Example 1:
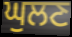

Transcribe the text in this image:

ਘੁਲਣ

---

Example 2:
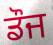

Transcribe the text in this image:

ਡੌਜ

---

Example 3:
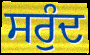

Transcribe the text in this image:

ਸਰੁੰਦ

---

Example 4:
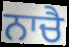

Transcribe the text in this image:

ਨਾਚੈ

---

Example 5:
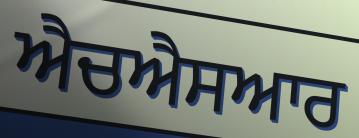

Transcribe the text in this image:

ਐਚਐਸਆਰ